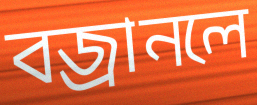
বজ্রানলে